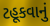
ટહૂકવાનું